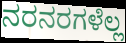
ನರನರಗಳೆಲ್ಲ